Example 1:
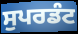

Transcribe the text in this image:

ਸੁਪਰਡੰਟ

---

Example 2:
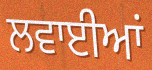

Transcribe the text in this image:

ਲਵਾਈਆਂ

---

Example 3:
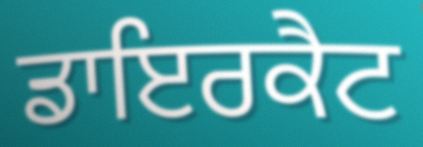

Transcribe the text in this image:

ਡਾਇਰਕੈਟ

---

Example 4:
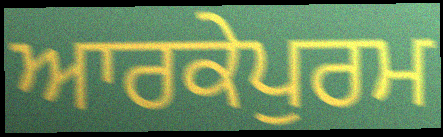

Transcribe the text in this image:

ਆਰਕੇਪੁਰਮ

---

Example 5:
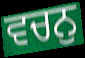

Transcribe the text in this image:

ਵਚਨੁ